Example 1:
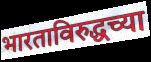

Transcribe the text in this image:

भारताविरुद्धच्या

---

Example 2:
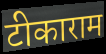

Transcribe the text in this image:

टीकाराम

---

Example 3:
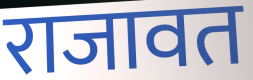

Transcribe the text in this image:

राजावत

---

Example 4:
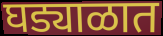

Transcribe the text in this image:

घड्याळात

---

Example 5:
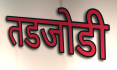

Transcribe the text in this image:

तडजोडी